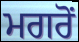
ਮਗਰੋਂ